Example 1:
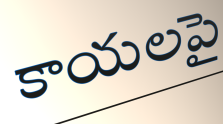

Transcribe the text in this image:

కాయలపై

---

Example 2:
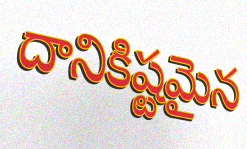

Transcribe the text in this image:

దానికిష్టమైన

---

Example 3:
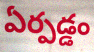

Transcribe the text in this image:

ఏర్పడ్డం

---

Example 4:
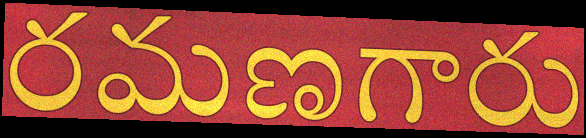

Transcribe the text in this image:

రమణగారు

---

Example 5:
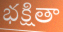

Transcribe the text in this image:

భక్షితా